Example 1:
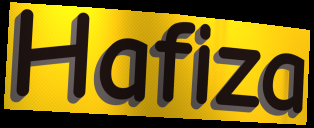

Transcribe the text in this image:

Hafiza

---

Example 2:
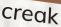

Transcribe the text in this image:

creak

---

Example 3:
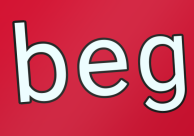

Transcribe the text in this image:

beg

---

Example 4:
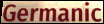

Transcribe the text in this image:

Germanic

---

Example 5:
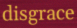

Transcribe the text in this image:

disgrace